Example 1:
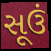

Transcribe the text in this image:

સૂઉં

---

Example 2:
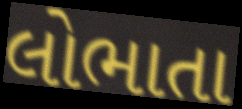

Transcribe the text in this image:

લોભાતા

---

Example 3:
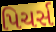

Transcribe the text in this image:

પિચર્સ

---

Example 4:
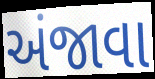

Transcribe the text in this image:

અંજાવા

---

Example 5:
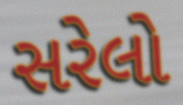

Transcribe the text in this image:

સરેલો